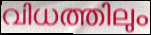
വിധത്തിലും